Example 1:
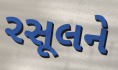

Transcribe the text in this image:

રસૂલને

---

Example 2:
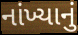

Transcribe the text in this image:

નાંખ્યાનું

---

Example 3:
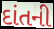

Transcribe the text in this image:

દાંતની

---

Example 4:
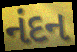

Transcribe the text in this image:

નંદન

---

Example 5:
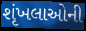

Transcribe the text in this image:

શૃંખલાઓની